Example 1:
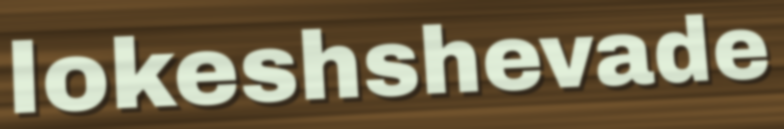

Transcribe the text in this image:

lokeshshevade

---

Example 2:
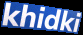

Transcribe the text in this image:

khidki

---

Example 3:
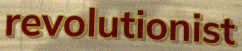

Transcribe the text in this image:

revolutionist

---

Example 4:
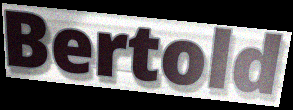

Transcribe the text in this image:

Bertold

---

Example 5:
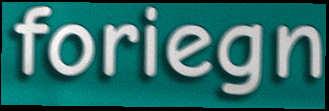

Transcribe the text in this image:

foriegn